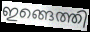
ഇങ്ങെത്തി